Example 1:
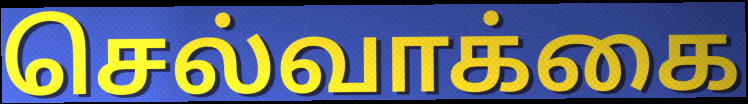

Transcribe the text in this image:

செல்வாக்கை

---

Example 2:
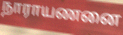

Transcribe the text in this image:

நாராயணனை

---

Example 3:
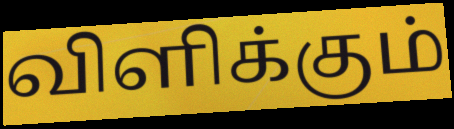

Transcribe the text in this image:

விளிக்கும்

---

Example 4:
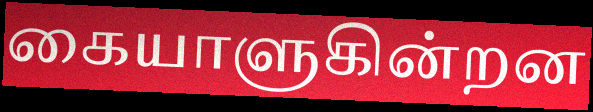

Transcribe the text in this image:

கையாளுகின்றன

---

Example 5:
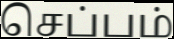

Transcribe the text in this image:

செப்பம்